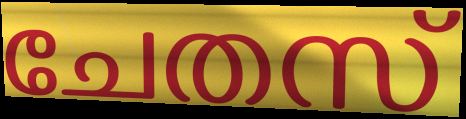
ചേതസ്